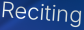
Reciting